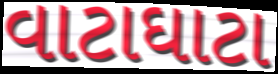
વાટાઘાટા